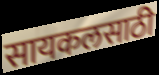
सायकलसाठी